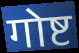
गोष्ट